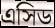
এসিড